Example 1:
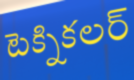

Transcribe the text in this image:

టెక్నికలర్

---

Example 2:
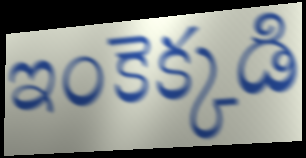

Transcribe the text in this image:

ఇంకెక్కడి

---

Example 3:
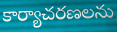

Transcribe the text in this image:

కార్యాచరణలను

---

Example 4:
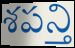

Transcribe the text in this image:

శపన్తి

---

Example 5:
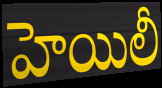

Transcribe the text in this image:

హెయిలీ